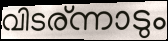
വിടര്ന്നാടും